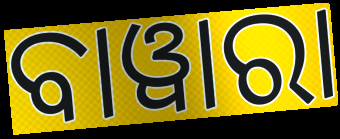
ବାୱାରା